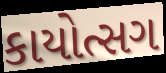
કાયોત્સગ